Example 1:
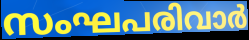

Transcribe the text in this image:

സംഘപരിവാർ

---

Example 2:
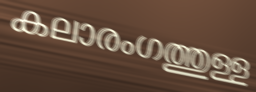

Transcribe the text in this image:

കലാരംഗത്തുള്ള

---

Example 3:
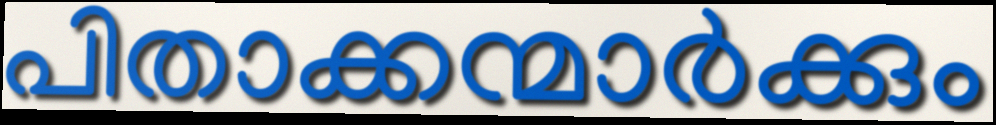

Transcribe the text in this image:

പിതാക്കന്മാർക്കും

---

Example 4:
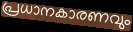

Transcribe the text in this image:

പ്രധാനകാരണവും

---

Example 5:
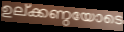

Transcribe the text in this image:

ഉല്ക്കണ്ഠയോടെ